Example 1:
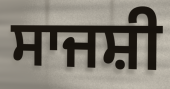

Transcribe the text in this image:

ਸਾਜਸ਼ੀ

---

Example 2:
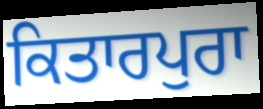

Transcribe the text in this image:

ਕਿਤਾਰਪੁਰਾ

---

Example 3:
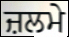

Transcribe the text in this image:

ਜ਼ਲਮੇ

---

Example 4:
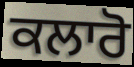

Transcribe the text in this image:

ਕਲਾਰੋ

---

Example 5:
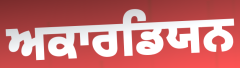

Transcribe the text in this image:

ਅਕਾਰਡਿਯਨ